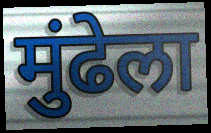
मुंढेला